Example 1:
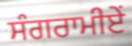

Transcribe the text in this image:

ਸੰਗਰਾਮੀਏਂ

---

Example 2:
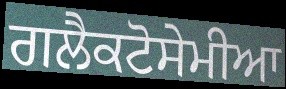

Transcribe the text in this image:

ਗਲੈਕਟੋਸੇਮੀਆ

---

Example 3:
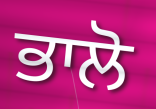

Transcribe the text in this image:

ਭਾਲੋ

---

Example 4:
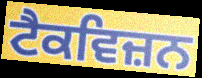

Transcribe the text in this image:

ਟੈਕਵਿਜ਼ਨ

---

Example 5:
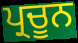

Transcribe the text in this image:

ਪ੍ਰਚੂਨ